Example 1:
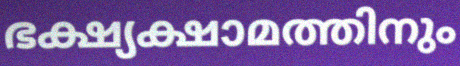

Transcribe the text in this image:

ഭക്ഷ്യക്ഷാമത്തിനും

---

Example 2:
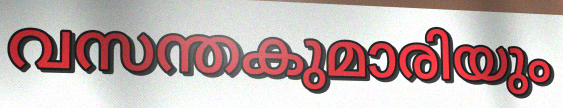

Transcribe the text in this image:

വസന്തകുമാരിയും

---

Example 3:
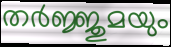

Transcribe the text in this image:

തർജ്ജുമയും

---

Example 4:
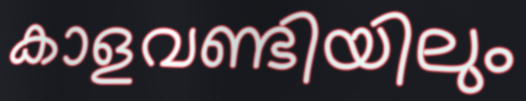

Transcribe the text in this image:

കാളവണ്ടിയിലും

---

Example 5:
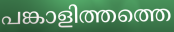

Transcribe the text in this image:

പങ്കാളിത്തത്തെ